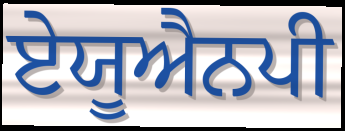
ਏਯੂਐਨਪੀ